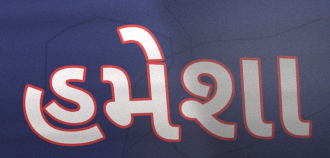
હમેશા